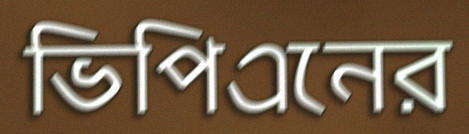
ভিপিএনের